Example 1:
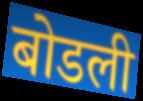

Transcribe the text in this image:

बोडली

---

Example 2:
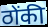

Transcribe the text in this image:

ठोंकी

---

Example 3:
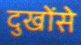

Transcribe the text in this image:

दुखोंसे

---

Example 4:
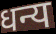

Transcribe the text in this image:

धन्य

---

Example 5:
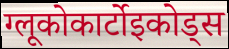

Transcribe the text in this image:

ग्लूकोकार्टोइकोड्स